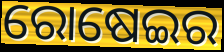
ରୋଷେଇର